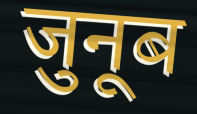
जुनूब